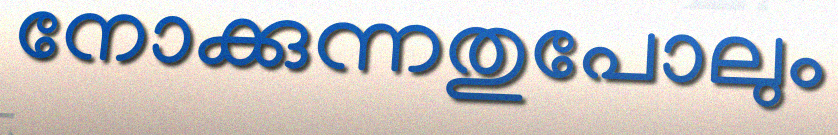
നോക്കുന്നതുപോലും